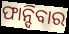
ଫାନ୍ଦିବାର